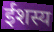
ईशस्य